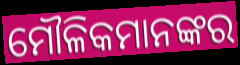
ମୌଳିକମାନଙ୍କର